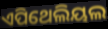
ଏପିଥେଲିୟଲ